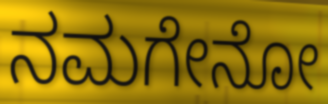
ನಮಗೇನೋ